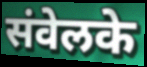
संवेलके